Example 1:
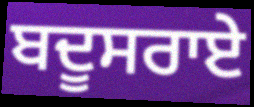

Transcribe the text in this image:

ਬਦੂਸਰਾਏ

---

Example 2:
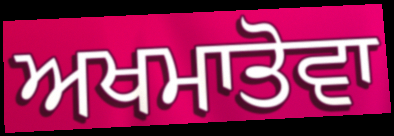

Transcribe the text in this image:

ਅਖਮਾਤੋਵਾ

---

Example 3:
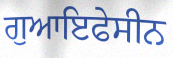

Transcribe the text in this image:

ਗੁਆਇਫੇਸੀਨ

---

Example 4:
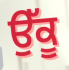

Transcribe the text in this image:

ਉੱਕੂ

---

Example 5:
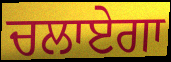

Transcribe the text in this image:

ਚਲਾਏਗਾ